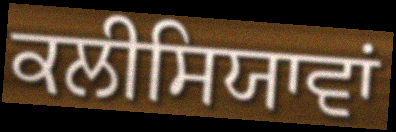
ਕਲੀਸਿਯਾਵਾਂ